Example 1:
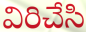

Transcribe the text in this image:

విరిచేసి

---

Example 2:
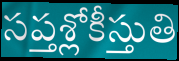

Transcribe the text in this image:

సప్తశ్లోకీస్తుతి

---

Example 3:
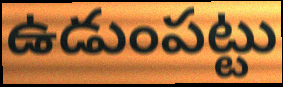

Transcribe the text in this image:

ఉడుంపట్టు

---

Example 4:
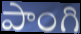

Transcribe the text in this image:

పాంగి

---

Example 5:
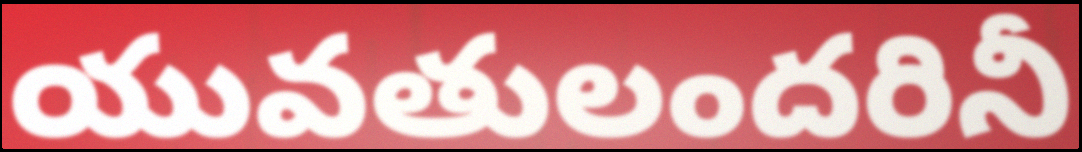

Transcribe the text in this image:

యువతులందరినీ